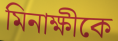
মিনাক্ষীকে